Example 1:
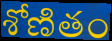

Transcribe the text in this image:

శోణితం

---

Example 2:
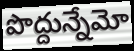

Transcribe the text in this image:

పొద్దున్నేమో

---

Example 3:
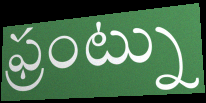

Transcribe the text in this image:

ఫ్రంట్ను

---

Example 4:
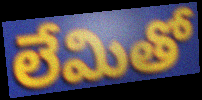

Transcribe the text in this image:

లేమితో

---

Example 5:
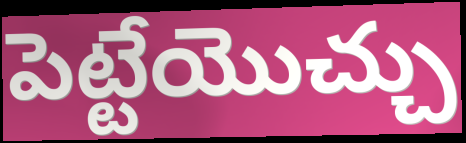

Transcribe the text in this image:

పెట్టేయొచ్చు